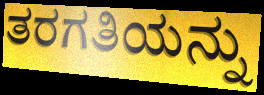
ತರಗತಿಯನ್ನು